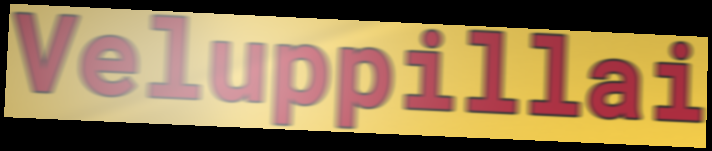
Veluppillai